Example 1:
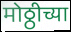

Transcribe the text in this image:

मोठ्ठीच्या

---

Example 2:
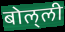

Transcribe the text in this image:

बोल्ली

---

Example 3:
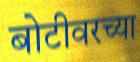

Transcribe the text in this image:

बोटीवरच्या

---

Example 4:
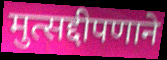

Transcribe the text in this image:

मुत्सद्दीपणाने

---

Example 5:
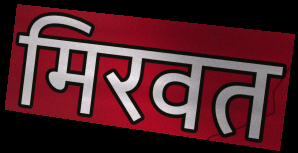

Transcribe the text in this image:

मिरवत